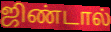
ஜிண்டால்